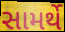
સામર્થે